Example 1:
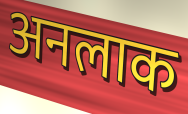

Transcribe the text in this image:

अनलाक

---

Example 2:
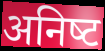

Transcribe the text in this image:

अनिष्‍ट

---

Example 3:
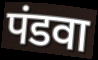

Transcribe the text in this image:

पंडवा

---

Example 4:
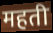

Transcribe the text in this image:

महती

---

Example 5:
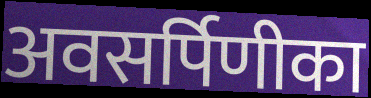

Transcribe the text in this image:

अवसर्पिणीका